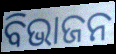
ବିଭାଜନ